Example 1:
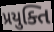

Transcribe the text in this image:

પ્રયુક્તિ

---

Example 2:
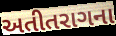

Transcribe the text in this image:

અતીતરાગના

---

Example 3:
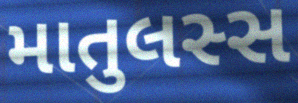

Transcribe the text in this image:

માતુલસ્સ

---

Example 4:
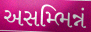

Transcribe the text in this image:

અસમ્ભિન્નં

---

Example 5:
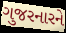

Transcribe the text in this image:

ગુજરનારને